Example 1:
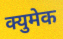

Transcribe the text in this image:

क्युमेक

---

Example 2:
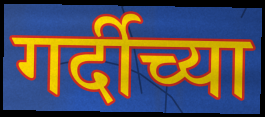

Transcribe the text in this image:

गर्दीच्या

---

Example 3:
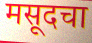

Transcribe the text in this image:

मसूदचा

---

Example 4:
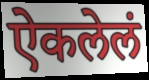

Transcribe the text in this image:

ऐकलेलं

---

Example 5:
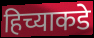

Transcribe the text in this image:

हिच्याकडे